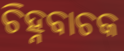
ଚିହ୍ନବାଚକ